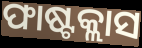
ଫାଷ୍ଟକ୍ଲାସ